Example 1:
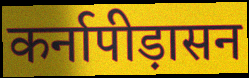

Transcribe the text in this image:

कर्नापीड़ासन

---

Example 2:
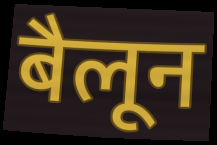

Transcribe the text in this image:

बैलून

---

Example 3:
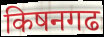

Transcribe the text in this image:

किषनगढ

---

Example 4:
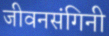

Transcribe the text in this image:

जीवनसंगिनी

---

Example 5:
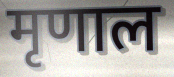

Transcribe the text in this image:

मृणाल